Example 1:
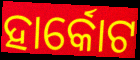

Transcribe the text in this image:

ହାର୍କୋଟ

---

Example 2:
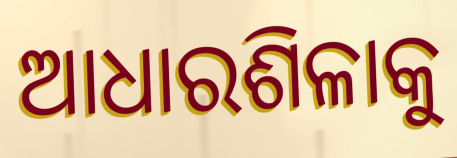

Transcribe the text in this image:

ଆଧାରଶିଳାକୁ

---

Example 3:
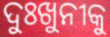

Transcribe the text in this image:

ଦୁଃଖୁନୀକୁ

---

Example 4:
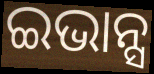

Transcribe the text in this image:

ଇଭାନ୍ସ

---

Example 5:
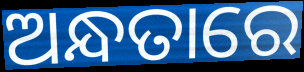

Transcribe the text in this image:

ଅନ୍ଧତାରେ